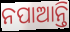
ନପାଆନ୍ତି